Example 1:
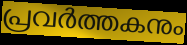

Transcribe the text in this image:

പ്രവർത്തകനും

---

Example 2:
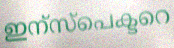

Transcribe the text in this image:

ഇന്സ്പെക്ടറെ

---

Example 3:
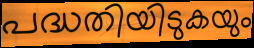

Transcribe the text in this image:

പദ്ധതിയിടുകയും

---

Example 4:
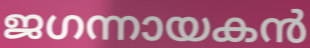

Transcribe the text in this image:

ജഗന്നായകൻ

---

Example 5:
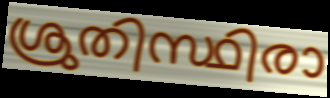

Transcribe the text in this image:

ശ്രുതിസ്ഥിരാ